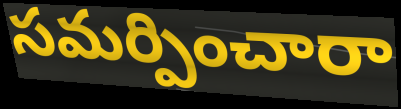
సమర్పించారా